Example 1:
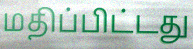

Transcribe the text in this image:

மதிப்பிட்டது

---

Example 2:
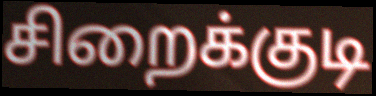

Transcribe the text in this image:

சிறைக்குடி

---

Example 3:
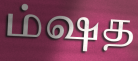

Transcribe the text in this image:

ம்ஷத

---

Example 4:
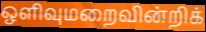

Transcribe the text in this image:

ஒளிவுமறைவின்றிக்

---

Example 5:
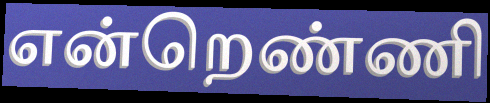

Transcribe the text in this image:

என்றெண்ணி